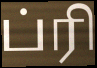
ப்ரி